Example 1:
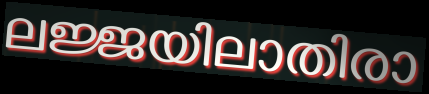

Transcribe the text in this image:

ലജ്ജയിലാതിരാ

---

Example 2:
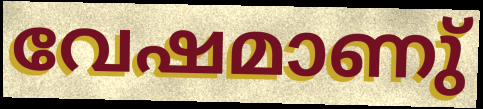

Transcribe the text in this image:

വേഷമാണു്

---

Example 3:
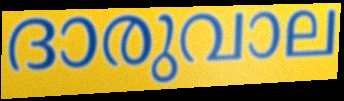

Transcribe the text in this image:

ദാരുവാല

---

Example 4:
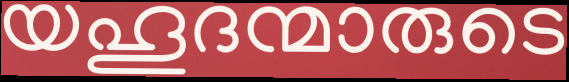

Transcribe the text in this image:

യഹൂദന്മാരുടെ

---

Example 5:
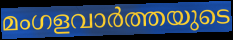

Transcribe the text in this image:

മംഗളവാർത്തയുടെ